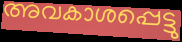
അവകാശപ്പെട്ടു